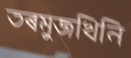
তৰমুজখিনি